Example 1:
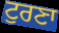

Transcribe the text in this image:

ਟੁਰਣਾ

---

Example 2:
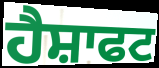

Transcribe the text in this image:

ਹੈਸ਼ਾਫਟ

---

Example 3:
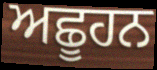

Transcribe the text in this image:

ਅਛੂਹਨ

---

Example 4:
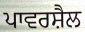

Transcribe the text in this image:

ਪਾਵਰਸ਼ੈਲ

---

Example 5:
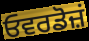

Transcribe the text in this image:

ਓਵਰਡੋਜ਼ਂ